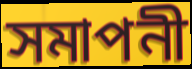
সমাপনী